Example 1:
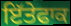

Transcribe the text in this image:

ਇੱਤੇਫਾਕ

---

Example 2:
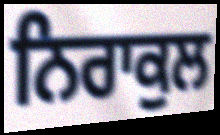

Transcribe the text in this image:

ਨਿਰਾਕੁਲ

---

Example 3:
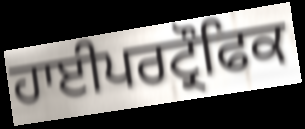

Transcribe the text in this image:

ਹਾਈਪਰਟ੍ਰੌਫਿਕ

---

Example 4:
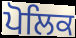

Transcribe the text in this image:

ਪੋਲਿਕ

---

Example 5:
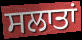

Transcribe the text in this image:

ਸਲਾਤਾਂ